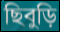
ছিবুড়ি